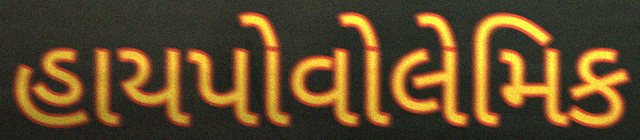
હાયપોવોલેમિક